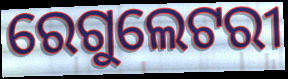
ରେଗୁଲେଟରୀ